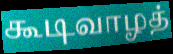
கூடிவாழத்